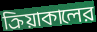
ক্রিয়াকালের